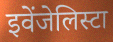
इवेंजेलिस्टा